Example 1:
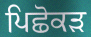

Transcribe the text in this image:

ਪਿਛੋਕੜ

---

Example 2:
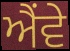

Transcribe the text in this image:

ਐਂਵੇ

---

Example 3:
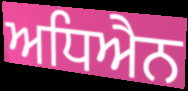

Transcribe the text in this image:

ਅਧਿਐਨ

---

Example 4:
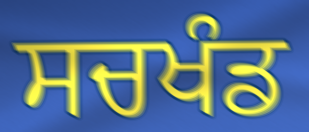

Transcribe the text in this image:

ਸਚਖੰਡ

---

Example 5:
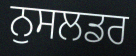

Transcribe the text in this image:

ਨੁਸਲਡਰ